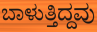
ಬಾಳುತ್ತಿದ್ದವು